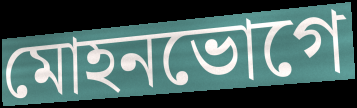
মোহনভোগে